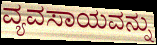
ವ್ಯವಸಾಯವನ್ನು